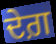
ਦੇਗ਼